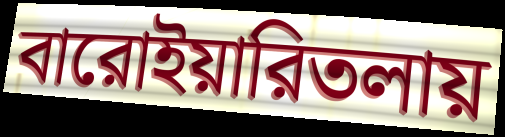
বারোইয়ারিতলায়